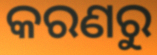
କରଣରୁ